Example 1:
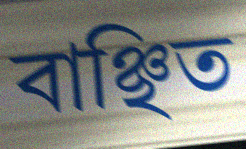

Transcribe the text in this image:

বাঞ্ছিত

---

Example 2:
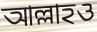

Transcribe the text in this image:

আল্লাহও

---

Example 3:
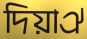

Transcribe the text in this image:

দিয়াঐ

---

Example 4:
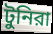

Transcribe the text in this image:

টুনিরা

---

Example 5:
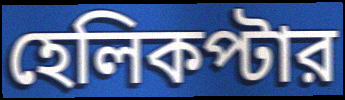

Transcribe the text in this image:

হেলিকপ্টার